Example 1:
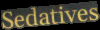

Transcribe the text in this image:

Sedatives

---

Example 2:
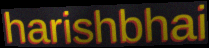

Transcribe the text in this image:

harishbhai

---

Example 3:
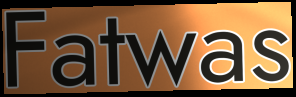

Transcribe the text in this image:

Fatwas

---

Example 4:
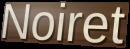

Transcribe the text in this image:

Noiret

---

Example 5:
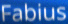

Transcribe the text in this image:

Fabius